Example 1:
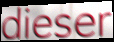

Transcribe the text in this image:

dieser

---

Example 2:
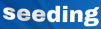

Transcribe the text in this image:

seeding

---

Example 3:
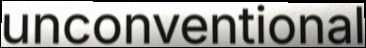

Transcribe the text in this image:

unconventional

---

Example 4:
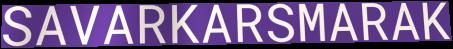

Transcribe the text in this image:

SAVARKARSMARAK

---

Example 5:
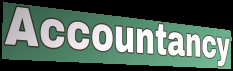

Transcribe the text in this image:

Accountancy